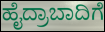
ಹೈದ್ರಾಬಾದಿಗೆ